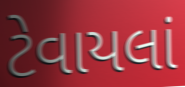
ટેવાયલાં